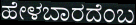
ಹೇಳಬಾರದೆಂಬ